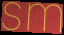
sm